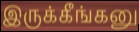
இருக்கீங்கனு